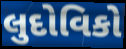
લુદોવિકો